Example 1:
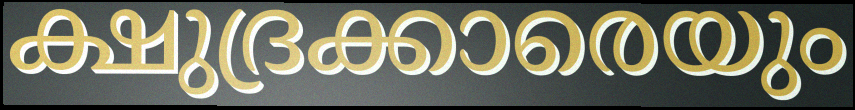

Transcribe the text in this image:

ക്ഷുദ്രക്കാരെയും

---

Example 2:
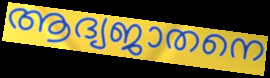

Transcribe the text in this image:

ആദ്യജാതനെ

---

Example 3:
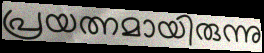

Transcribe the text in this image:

പ്രയത്നമായിരുന്നു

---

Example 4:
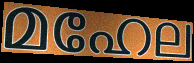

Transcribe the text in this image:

മഹേല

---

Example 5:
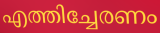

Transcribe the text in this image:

എത്തിച്ചേരണം